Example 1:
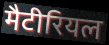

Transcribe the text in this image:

मैटीरियल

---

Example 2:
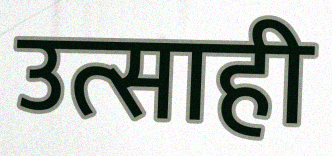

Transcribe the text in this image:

उत्साही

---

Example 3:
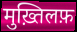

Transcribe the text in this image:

मुख़्तिलफ़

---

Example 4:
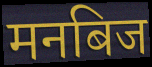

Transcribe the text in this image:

मनबिज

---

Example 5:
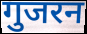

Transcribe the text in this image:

गुजरन